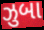
ઝુબા